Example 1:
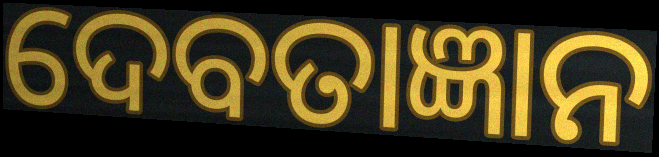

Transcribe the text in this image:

ଦେବତାଜ୍ଞାନ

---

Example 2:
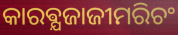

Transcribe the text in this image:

କାରଵ୍ଯଜାଜୀମରିଚଂ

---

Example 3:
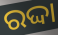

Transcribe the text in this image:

ରଦ୍ଦା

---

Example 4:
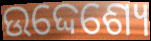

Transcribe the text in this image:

ଉଦ୍ଦେଶ୍ୟେ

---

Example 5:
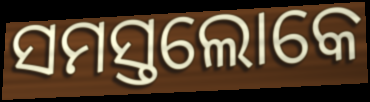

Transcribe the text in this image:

ସମସ୍ତଲୋକେ